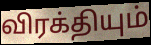
விரக்தியும்